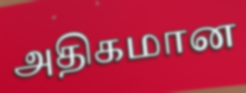
அதிகமான